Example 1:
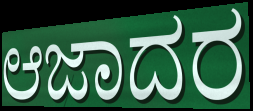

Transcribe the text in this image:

ಆಜಾದರ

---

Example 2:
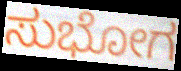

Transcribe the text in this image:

ಸುಭೋಗ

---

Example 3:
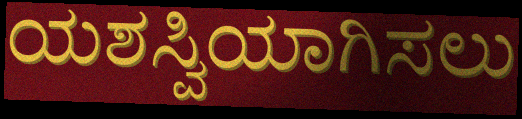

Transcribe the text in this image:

ಯಶಸ್ವಿಯಾಗಿಸಲು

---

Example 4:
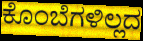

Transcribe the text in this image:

ಕೊಂಬೆಗಳಿಲ್ಲದ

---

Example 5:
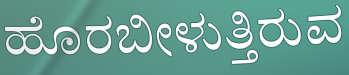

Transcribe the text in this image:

ಹೊರಬೀಳುತ್ತಿರುವ